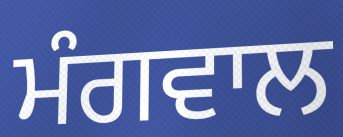
ਮੰਗਵਾਲ